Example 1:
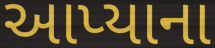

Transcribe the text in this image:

આપ્યાના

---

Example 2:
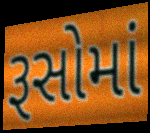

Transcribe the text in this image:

રૂસોમાં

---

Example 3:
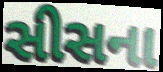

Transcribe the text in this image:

સીસના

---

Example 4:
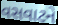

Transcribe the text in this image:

વસવાટને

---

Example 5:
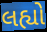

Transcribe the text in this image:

લહ્યો